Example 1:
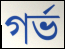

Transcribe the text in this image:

গৰ্ভ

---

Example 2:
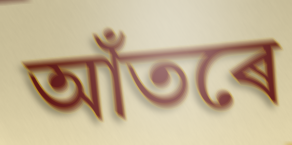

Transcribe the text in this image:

আঁতৰে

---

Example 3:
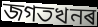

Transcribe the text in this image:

জগতখনৰ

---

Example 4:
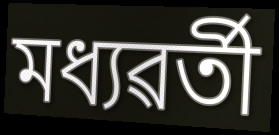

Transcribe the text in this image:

মধ্যৱৰ্তী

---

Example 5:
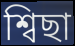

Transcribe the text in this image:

শ্বিছা